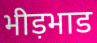
भीड़भाड